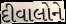
દીવાલોને